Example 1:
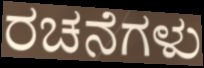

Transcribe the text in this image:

ರಚನೆಗಳು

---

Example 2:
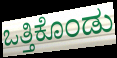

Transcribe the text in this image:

ಒತ್ತಿಕೊಂಡು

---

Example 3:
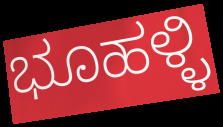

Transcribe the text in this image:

ಭೂಹಳ್ಳಿ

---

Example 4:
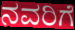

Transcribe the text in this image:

ನವರಿಗೆ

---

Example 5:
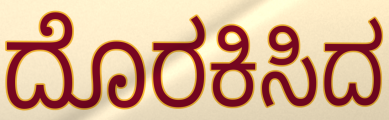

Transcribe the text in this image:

ದೊರಕಿಸಿದ